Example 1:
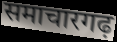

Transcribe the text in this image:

समाचारगढ़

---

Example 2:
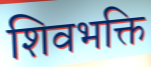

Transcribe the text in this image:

शिवभक्ति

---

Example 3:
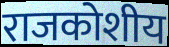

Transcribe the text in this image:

राजकोशीय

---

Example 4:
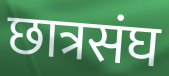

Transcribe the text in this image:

छात्रसंघ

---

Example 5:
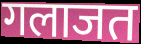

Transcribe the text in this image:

गलाजत